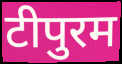
टीपुरम